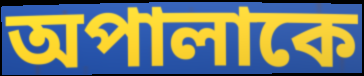
অপালাকে